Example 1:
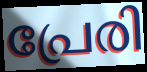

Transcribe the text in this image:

പ്രേരി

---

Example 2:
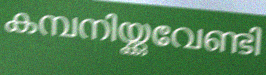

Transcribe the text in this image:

കമ്പനിയ്ക്കുവേണ്ടി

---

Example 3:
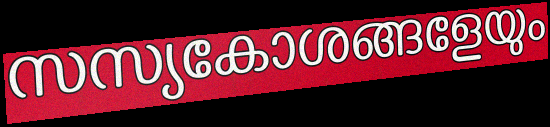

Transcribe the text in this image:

സസ്യകോശങ്ങളേയും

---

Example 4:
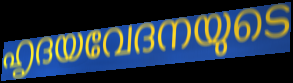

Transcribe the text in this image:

ഹൃദയവേദനയുടെ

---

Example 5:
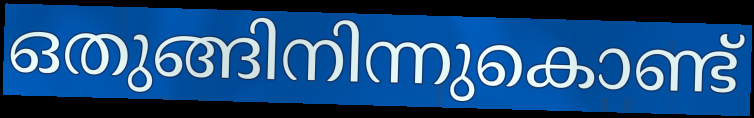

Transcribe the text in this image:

ഒതുങ്ങിനിന്നുകൊണ്ട്